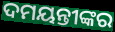
ଦମୟନ୍ତୀଙ୍କର